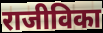
राजीविका